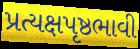
પ્રત્યક્ષપૃષ્ઠભાવી